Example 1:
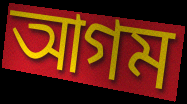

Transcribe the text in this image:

আগম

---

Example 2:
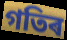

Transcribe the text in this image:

গতিৰ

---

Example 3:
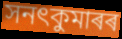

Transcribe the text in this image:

সনৎকুমাৰৰ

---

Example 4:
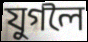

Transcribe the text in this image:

যুগলৈ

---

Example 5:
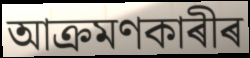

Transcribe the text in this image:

আক্ৰমণকাৰীৰ